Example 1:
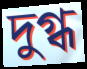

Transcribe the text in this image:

দুগ্ধ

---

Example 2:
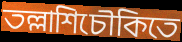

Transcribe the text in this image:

তল্লাশিচৌকিতে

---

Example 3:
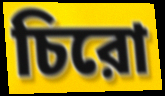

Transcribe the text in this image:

চিরো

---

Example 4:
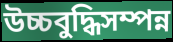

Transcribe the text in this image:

উচ্চবুদ্ধিসম্পন্ন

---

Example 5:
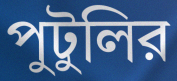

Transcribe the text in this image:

পুটুলির